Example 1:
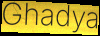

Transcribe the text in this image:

Ghadya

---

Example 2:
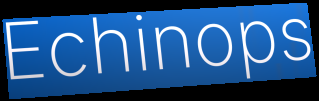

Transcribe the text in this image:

Echinops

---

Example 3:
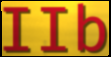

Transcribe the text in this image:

IIb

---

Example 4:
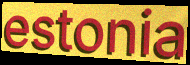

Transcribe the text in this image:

estonia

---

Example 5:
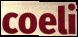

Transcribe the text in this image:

coeli